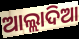
ଆଲ୍ଲାଦିଆ